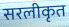
सरलीकृत